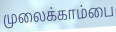
முலைக்காம்பை